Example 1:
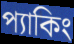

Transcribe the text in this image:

প্যাকিং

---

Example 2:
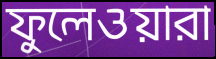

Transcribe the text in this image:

ফুলেওয়ারা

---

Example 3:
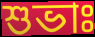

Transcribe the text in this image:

শুভাঃ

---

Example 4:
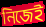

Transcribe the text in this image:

নিজেই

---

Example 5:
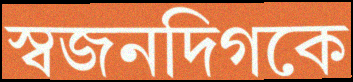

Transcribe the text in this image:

স্বজনদিগকে